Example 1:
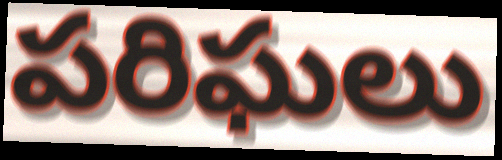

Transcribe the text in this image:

పరిఘలు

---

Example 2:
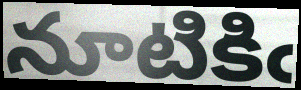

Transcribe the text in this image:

నూటికిఁ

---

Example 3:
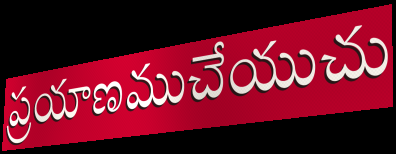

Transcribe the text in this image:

ప్రయాణముచేయుచు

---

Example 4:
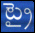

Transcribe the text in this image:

ట్రై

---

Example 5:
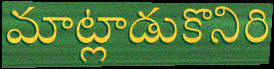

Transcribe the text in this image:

మాట్లాడుకొనిరి